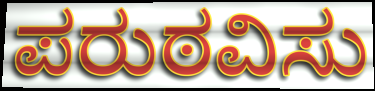
ಪರುಠವಿಸು